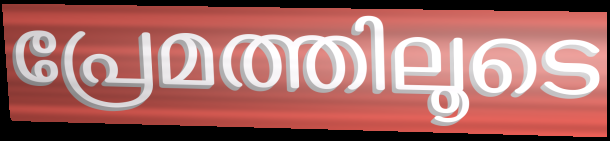
പ്രേമത്തിലൂടെ